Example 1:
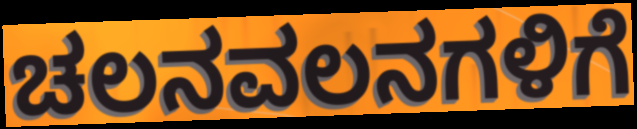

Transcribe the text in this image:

ಚಲನವಲನಗಳಿಗೆ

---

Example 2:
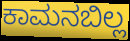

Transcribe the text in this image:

ಕಾಮನಬಿಲ್ಲ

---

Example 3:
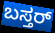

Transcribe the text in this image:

ಬಸ್ತರ್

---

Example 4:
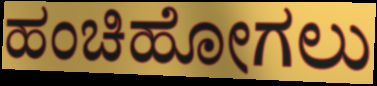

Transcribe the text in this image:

ಹಂಚಿಹೋಗಲು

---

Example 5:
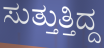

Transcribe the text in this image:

ಸುತ್ತುತ್ತಿದ್ದ